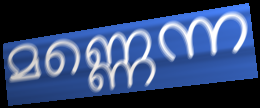
മണ്ണെന്ന